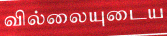
வில்லையுடைய